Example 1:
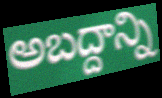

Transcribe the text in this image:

అబద్దాన్ని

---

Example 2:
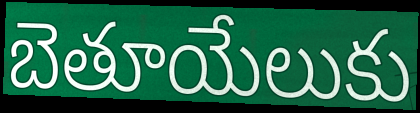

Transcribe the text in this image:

బెతూయేలుకు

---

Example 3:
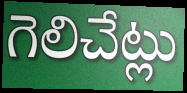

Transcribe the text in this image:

గెలిచేట్లు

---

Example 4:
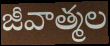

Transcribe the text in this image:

జీవాత్మల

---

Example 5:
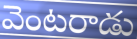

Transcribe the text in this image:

వెంటరాడు